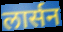
लार्सन